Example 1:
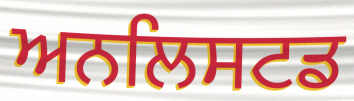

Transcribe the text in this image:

ਅਨਲਿਸਟਡ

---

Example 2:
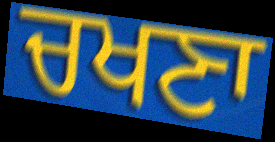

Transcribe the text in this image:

ਚਖਣਾ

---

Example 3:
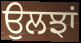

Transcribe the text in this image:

ਉਲਝਾਂ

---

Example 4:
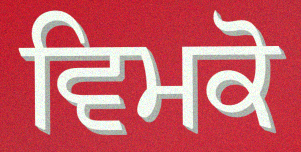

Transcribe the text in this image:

ਵਿਮਕੋ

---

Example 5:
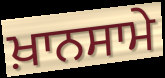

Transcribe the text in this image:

ਖ਼ਾਨਸਾਮੇ